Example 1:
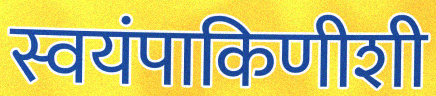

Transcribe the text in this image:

स्वयंपाकिणीशी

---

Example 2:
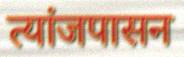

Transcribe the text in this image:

त्यांजपासन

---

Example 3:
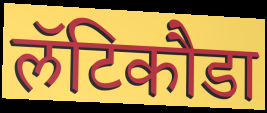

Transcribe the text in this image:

लॅटिकौडा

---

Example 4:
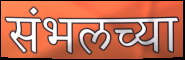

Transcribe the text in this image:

संभलच्या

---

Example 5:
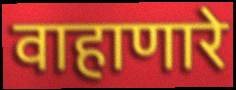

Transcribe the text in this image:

वाहाणारे